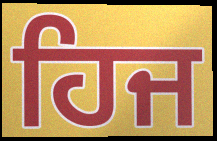
ਹਿਜ